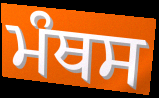
ਮੰਥਸ